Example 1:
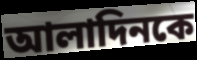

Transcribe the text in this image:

আলাদিনকে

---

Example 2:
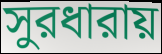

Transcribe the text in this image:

সুরধারায়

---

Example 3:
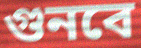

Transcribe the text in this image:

গুনবে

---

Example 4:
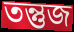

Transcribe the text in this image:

তন্তুজ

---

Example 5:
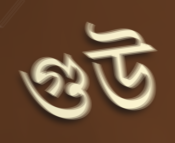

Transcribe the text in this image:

গুউ